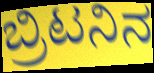
ಬ್ರಿಟನಿನ